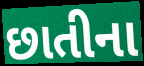
છાતીના